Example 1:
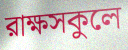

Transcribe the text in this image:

রাক্ষসকুলে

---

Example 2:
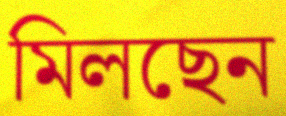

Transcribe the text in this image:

মিলছেন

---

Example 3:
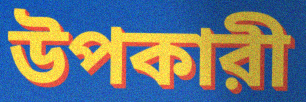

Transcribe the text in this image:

উপকারী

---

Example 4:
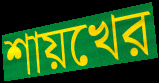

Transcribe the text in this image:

শায়খের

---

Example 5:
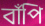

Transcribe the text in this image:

বাঁপি